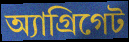
অ্যাগ্রিগেট